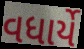
વધાર્યે